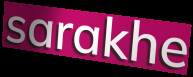
sarakhe